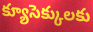
క్యూసెక్కులకు